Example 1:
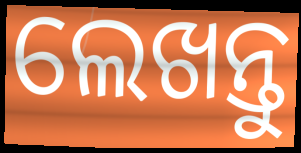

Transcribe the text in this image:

ଲେଖନ୍ତୁ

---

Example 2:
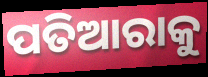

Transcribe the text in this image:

ପତିଆରାକୁ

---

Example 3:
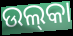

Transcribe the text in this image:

ଉଲ୍‍କା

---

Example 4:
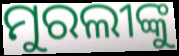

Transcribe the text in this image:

ମୁରଲୀଙ୍କୁ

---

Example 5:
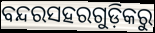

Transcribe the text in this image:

ବନ୍ଦରସହରଗୁଡ଼ିକରୁ